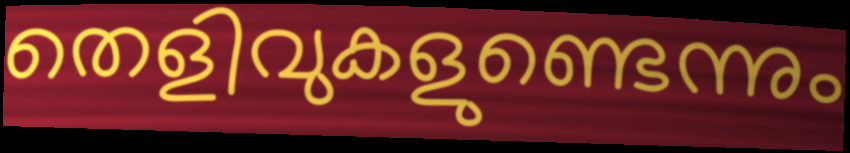
തെളിവുകളുണ്ടെന്നും